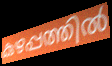
കുഴപ്പത്തിൽ